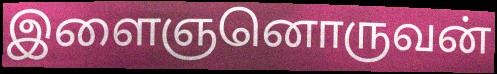
இளைஞனொருவன்